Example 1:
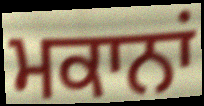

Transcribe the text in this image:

ਮਕਾਨਾਂ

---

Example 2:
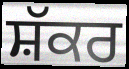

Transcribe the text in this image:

ਸ਼ੱਕਰ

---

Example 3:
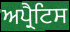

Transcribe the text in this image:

ਅਪ੍ਰੈਟਿਸ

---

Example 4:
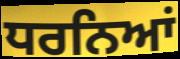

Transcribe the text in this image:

ਧਰਨਿਆਂ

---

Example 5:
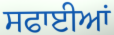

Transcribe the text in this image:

ਸਫਾਈਆਂ